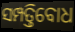
ସମ୍ପତ୍ତିବୋଧ